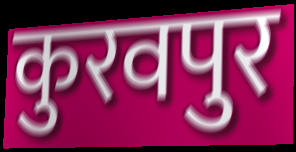
कुरवपुर